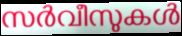
സർവീസുകൾ